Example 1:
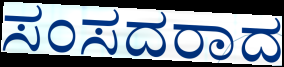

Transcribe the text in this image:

ಸಂಸದರಾದ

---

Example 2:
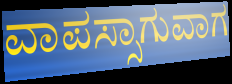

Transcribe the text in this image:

ವಾಪಸ್ಸಾಗುವಾಗ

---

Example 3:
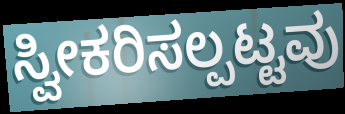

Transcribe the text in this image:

ಸ್ವೀಕರಿಸಲ್ಪಟ್ಟವು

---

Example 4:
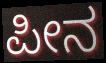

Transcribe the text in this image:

ಪೀನ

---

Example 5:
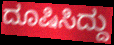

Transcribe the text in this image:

ದೂಷಿಸಿದ್ದು